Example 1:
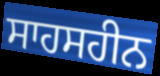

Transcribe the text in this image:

ਸਾਹਸਹੀਨ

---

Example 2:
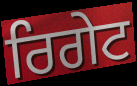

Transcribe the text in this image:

ਰਿਗੇਟ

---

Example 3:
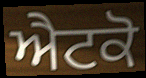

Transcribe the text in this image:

ਐਟਕੋ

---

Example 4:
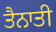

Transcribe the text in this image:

ਤੈਨਾਤੀ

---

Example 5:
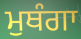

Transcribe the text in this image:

ਮੁਥੰਗਾ